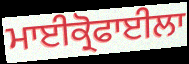
ਮਾਈਕ੍ਰੋਫਾਈਲਾ